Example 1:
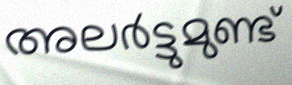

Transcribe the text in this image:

അലർട്ടുമുണ്ട്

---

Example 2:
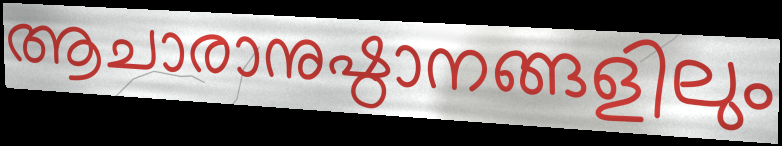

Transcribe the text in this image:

ആചാരാനുഷ്ഠാനങ്ങളിലും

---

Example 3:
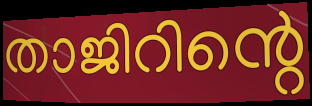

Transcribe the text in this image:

താജിറിന്റെ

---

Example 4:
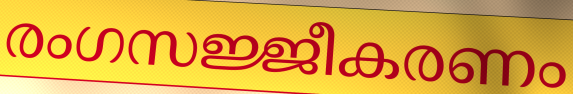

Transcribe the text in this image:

രംഗസജ്ജീകരണം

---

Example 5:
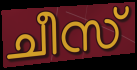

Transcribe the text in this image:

ചീസ്